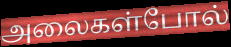
அலைகள்போல்